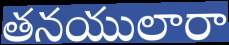
తనయులారా